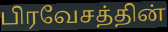
பிரவேசத்தின்